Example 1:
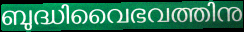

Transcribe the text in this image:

ബുദ്ധിവൈഭവത്തിനു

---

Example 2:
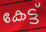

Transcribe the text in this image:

കേട്ട്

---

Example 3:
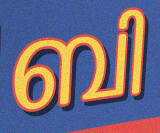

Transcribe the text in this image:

ബി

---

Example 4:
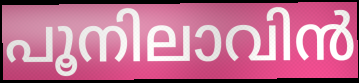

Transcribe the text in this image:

പൂനിലാവിൻ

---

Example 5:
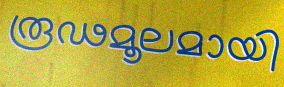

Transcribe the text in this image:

രൂഢമൂലമായി